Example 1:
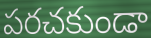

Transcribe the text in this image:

పరచకుండా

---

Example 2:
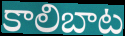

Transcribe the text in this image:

కాలిబాట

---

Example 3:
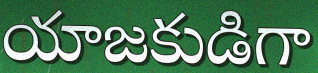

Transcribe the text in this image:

యాజకుడిగా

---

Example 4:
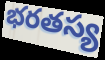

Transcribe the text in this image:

భరతస్య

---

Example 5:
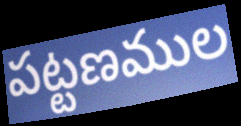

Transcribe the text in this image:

పట్టణముల